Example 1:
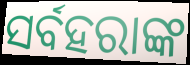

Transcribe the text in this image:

ସର୍ବହରାଙ୍କ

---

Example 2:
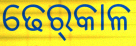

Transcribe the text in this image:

ଢେର୍‌କାଳ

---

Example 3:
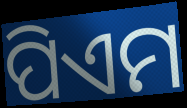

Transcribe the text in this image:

ପିଏମ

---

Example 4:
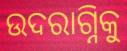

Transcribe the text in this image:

ଉଦରାଗ୍ନିକୁ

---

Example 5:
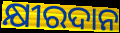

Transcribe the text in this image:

କ୍ଷୀରଦାନ